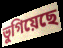
ভুগিয়েছে